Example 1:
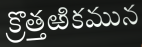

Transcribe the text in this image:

క్రొత్తఱికమున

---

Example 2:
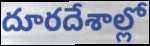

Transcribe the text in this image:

దూరదేశాల్లో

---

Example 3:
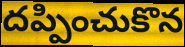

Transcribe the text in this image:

దప్పించుకొన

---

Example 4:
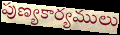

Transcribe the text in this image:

పుణ్యకార్యములు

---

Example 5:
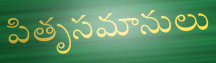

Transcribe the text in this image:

పితృసమానులు